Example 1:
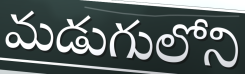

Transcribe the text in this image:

మడుగులోని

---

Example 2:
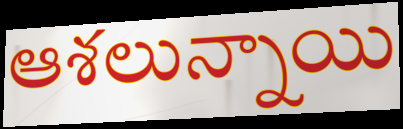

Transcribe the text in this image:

ఆశలున్నాయి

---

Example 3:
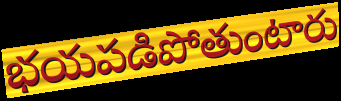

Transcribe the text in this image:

భయపడిపోతుంటారు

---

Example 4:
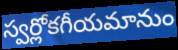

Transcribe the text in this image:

స్వర్లోకగీయమానుం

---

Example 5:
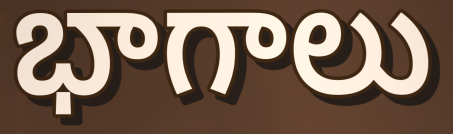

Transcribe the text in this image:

భాగాలు